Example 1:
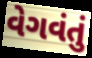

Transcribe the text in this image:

વેગવંતું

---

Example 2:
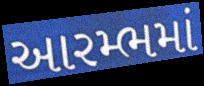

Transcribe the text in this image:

આરમ્ભમાં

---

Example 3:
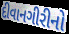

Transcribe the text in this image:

દીવાનગીરીનો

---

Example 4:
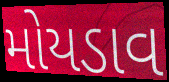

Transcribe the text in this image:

મોયડાવ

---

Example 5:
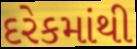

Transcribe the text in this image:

દરેકમાંથી